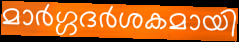
മാർഗ്ഗദർശകമായി